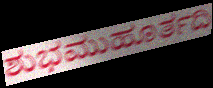
ಶುಭಮುಹೂರ್ತದಿ